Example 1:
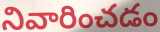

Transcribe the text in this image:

నివారించడం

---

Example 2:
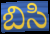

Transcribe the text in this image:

బిసి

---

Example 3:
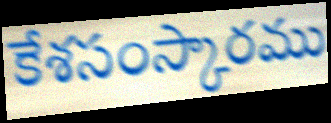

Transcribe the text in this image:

కేశసంస్కారము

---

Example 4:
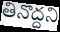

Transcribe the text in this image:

తినొద్దని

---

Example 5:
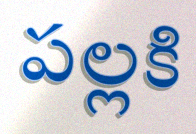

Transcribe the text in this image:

పల్లకి